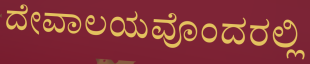
ದೇವಾಲಯವೊಂದರಲ್ಲಿ